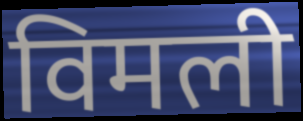
विमली